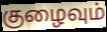
குழைவும்